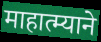
माहात्म्याने